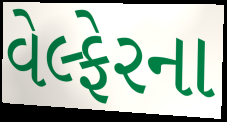
વેલ્ફેરના